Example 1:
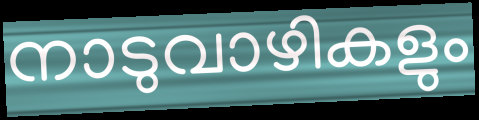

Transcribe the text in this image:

നാടുവാഴികളും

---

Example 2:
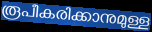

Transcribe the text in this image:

രൂപീകരിക്കാനുമുള്ള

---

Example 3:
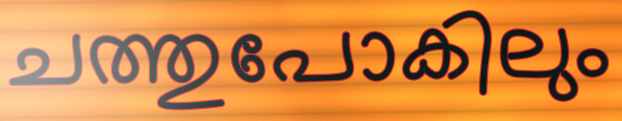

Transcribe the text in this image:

ചത്തുപോകിലും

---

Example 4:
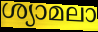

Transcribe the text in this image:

ശ്യാമലാ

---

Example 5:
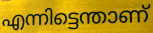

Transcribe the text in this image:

എന്നിട്ടെന്താണ്